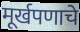
मूर्खपणाचे